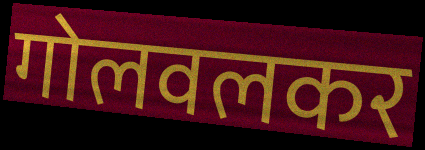
गोलवलकर